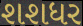
શશધર